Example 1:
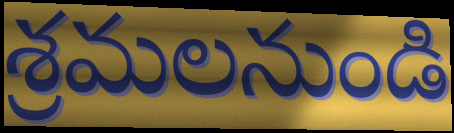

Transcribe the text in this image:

శ్రమలనుండి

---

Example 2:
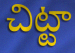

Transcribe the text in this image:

చిట్టా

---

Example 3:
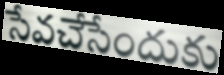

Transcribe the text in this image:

సేవచేసేందుకు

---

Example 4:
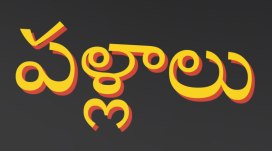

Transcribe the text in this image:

పళ్లాలు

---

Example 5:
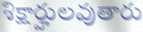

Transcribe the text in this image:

శిక్షార్హులవుతారు